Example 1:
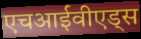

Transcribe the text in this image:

एचआईवीएड्स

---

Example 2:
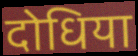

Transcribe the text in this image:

दोधिया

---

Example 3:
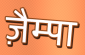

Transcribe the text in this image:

ज़ैम्पा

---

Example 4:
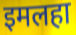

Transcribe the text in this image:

इमलहा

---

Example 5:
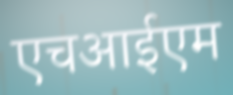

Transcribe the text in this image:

एचआईएम